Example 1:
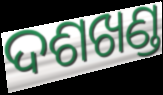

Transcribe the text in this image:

ଦଶଖଣ୍ଡ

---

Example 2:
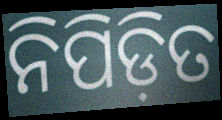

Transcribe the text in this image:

ନିପିଡ଼ିତ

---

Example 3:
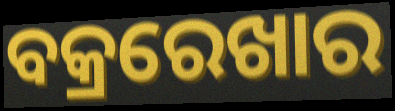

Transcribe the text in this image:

ବକ୍ରରେଖାର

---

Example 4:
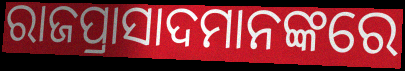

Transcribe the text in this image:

ରାଜପ୍ରାସାଦମାନଙ୍କରେ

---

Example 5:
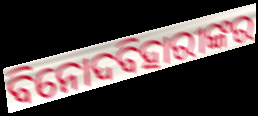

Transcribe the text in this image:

ବିନୋଦବିହାରୀଙ୍କର